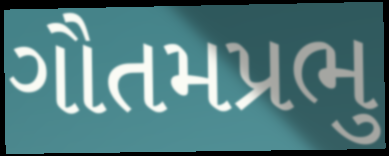
ગૌતમપ્રભુ